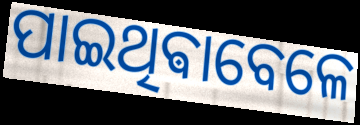
ପାଇଥିଵାବେଳେ